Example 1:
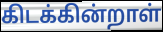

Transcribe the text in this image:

கிடக்கின்றாள்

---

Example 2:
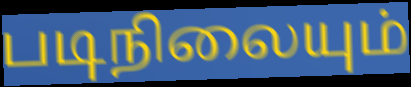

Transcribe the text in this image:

படிநிலையும்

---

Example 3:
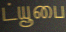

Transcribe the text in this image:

ட்யூபை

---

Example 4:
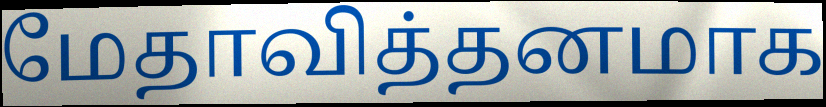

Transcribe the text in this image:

மேதாவித்தனமாக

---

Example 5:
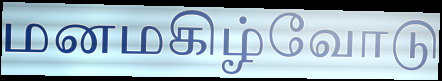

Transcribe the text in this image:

மனமகிழ்வோடு